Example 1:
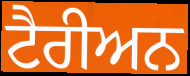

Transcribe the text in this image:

ਟੈਰੀਅਨ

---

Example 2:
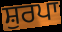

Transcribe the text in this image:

ਸ਼ੁਰਪਾ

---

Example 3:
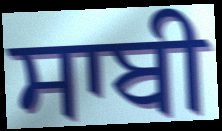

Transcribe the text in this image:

ਸਾਬੀ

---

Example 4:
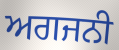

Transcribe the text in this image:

ਅਗਜਨੀ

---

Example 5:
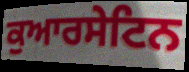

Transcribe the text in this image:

ਕੁਆਰਸੇਟਿਨ